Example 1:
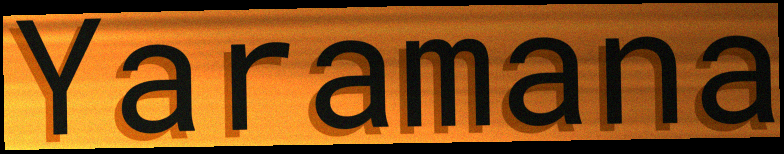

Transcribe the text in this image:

Yaramana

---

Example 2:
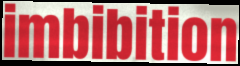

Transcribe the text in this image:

imbibition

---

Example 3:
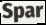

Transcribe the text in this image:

Spar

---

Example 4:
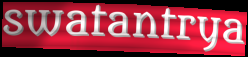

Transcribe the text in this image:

swatantrya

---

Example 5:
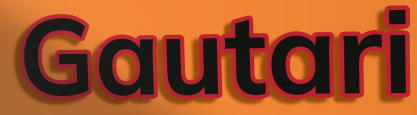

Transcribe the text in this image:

Gautari